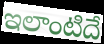
ఇలాంటిదే